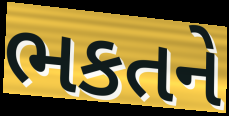
ભકતને